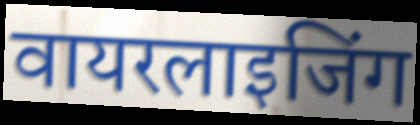
वायरलाइजिंग